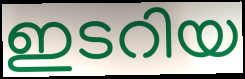
ഇടറിയ